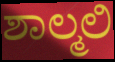
ಶಾಲ್ಮಲಿ